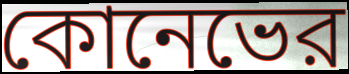
কোনেভের